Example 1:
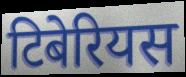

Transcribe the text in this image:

टिबेरियस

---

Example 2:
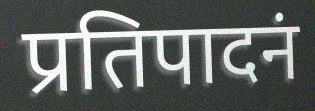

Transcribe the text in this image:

प्रतिपादनं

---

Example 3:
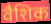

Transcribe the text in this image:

वैशिक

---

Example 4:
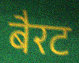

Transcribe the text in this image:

बैरट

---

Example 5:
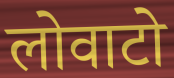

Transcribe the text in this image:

लोवाटो